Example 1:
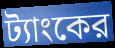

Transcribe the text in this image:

ট্যাংকের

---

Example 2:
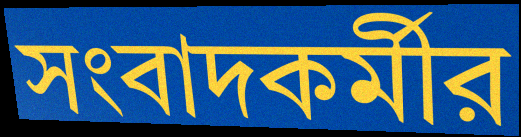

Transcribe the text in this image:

সংবাদকর্মীর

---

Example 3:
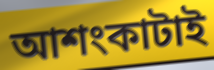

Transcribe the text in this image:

আশংকাটাই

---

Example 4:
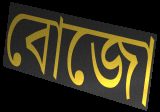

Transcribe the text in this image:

বোজো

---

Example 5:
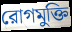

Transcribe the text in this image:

রোগমুক্তি